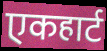
एकहार्ट